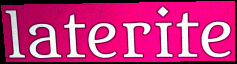
laterite